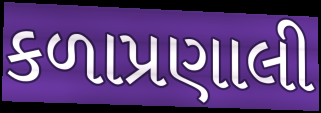
કળાપ્રણાલી